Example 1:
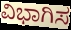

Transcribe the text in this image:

ವಿಭಾಗಿಸ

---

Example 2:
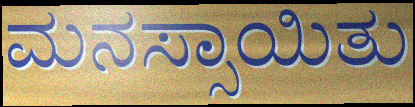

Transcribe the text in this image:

ಮನಸ್ಸಾಯಿತು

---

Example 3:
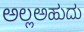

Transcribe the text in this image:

ಅಲ್ಲಅಹುದು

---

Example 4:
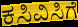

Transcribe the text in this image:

ಕಸಿವಿಸಿಗೆ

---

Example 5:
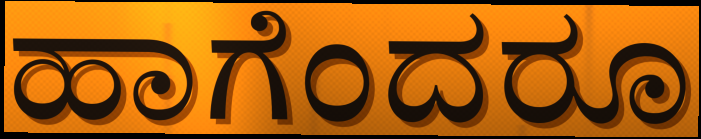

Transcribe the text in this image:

ಹಾಗೆಂದರೂ